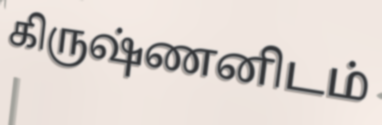
கிருஷ்ணனிடம்